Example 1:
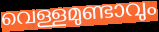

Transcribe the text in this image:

വെള്ളമുണ്ടാവും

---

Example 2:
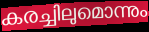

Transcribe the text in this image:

കരച്ചിലുമൊന്നും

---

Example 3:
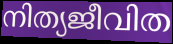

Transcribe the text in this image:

നിത്യജീവിത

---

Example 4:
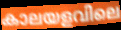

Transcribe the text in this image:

കാലയളവിലെ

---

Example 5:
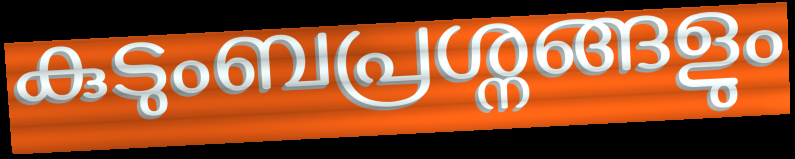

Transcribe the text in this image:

കുടുംബപ്രശ്നങ്ങളും